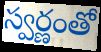
స్వర్ణంతో